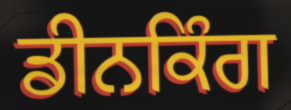
ਡੀਨਕਿੰਗ